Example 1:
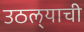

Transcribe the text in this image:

उठल्याची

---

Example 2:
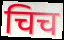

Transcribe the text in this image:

चिच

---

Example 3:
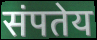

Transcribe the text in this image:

संपतेय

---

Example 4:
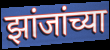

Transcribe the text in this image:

झांजांच्या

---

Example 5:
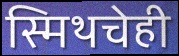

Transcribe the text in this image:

स्मिथचेही